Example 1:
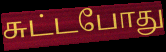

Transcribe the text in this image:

சுட்டபோது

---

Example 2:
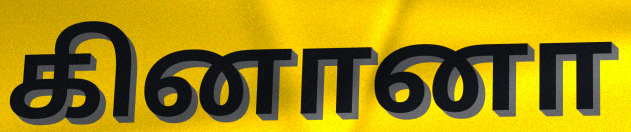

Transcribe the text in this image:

கினானா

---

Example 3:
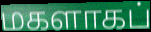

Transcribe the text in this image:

மகளாகப்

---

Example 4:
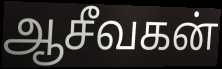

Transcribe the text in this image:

ஆசீவகன்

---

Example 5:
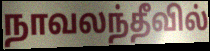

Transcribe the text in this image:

நாவலந்தீவில்